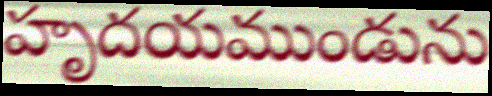
హృదయముండును